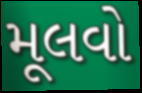
મૂલવો